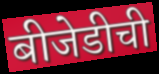
बीजेडीची